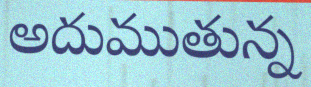
అదుముతున్న